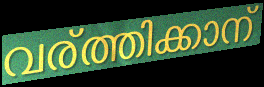
വര്ത്തിക്കാന്